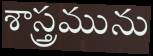
శాస్త్రమును